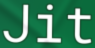
Jit